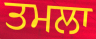
ਤਮਲਾ